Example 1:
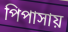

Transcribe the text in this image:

পিপাসায়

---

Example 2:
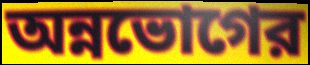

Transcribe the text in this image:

অন্নভোগের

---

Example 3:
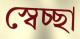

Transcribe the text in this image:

স্বেচ্ছা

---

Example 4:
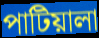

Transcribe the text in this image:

পাটিয়ালা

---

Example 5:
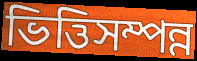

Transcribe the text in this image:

ভিত্তিসম্পন্ন